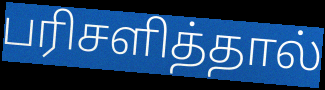
பரிசளித்தால்